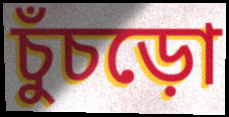
চুঁচড়ো